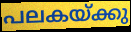
പലകയ്ക്കു